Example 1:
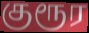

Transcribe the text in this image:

குரூர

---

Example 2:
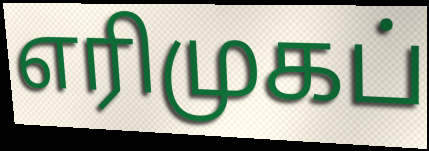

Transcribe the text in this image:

எரிமுகப்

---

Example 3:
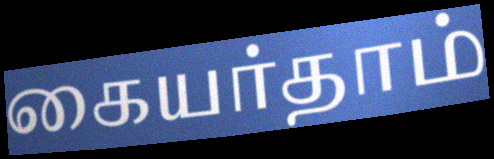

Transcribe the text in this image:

கையர்தாம்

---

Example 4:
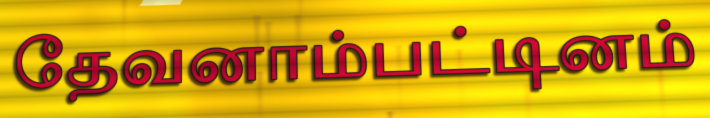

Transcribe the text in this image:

தேவனாம்பட்டினம்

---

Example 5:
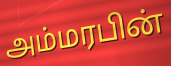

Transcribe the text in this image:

அம்மரபின்